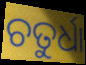
ଚତୁର୍ଧା